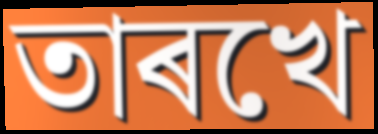
তাৰখে